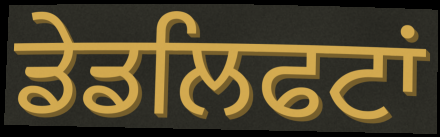
ਡੇਡਲਿਫਟਾਂ